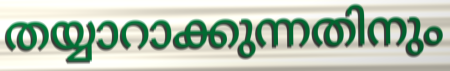
തയ്യാറാക്കുന്നതിനും